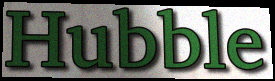
Hubble